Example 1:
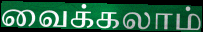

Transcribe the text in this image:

வைக்கலாம்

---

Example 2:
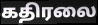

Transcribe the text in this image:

கதிரலை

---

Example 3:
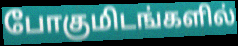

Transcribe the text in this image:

போகுமிடங்களில்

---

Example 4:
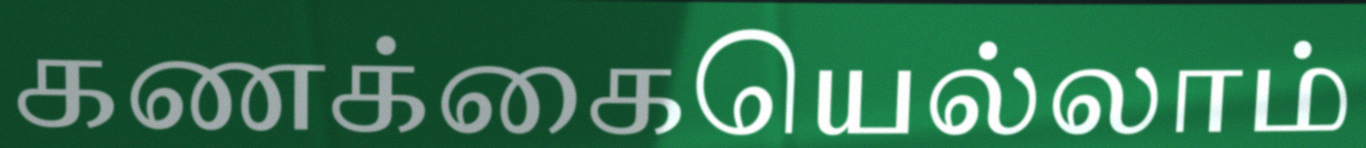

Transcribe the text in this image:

கணக்கையெல்லாம்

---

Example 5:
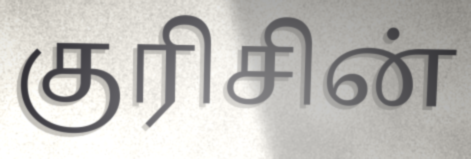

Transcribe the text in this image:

குரிசின்